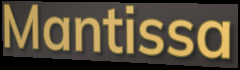
Mantissa